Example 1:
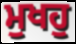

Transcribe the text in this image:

ਮੁਖਹੁ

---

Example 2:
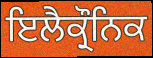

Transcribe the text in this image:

ਇਲੈਕ੍ਰੌਨਿਕ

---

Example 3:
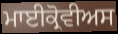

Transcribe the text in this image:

ਮਾਈਕ੍ਰੋਵੀਅਸ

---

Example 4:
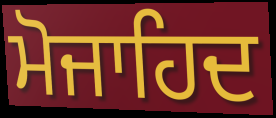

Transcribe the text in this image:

ਮੋਜਾਹਿਦ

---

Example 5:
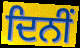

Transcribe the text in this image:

ਦਿਨੀਂ